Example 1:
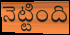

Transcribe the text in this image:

నెట్టింది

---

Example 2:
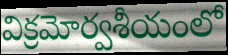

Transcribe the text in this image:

విక్రమోర్వశీయంలో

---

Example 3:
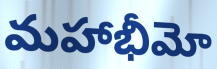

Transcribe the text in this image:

మహాభీమో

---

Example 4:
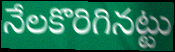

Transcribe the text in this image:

నేలకొరిగినట్టు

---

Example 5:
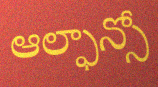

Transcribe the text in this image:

ఆల్ఫాన్సో